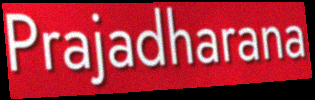
Prajadharana